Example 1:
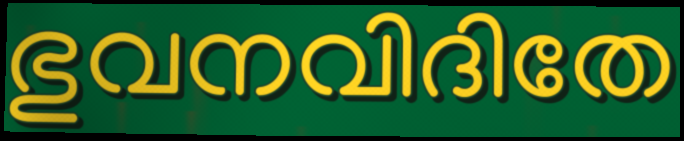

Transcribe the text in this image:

ഭുവനവിദിതേ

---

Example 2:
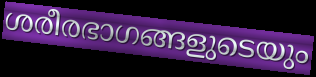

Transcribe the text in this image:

ശരീരഭാഗങ്ങളുടെയും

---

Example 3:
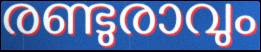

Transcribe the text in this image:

രണ്ടുരാവും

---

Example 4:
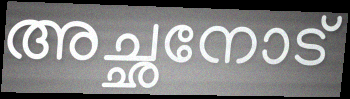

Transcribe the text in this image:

അച്ഛനോട്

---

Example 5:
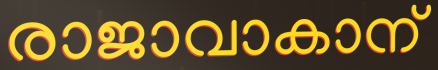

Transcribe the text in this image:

രാജാവാകാന്